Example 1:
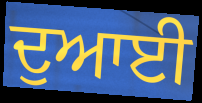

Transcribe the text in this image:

ਦੁਆਈ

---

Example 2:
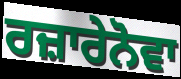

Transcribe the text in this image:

ਰਜ਼ਾਰੇਨੋਵਾ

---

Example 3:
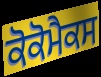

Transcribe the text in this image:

ਕੋਕੋਮੈਕਸ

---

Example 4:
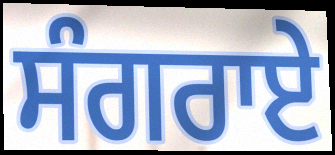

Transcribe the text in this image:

ਸੰਗਰਾਏ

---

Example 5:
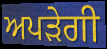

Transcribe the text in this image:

ਅਪੜੇਗੀ